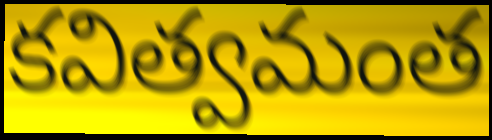
కవిత్వమంత